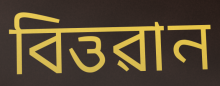
বিত্তৱান